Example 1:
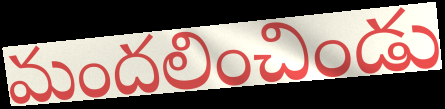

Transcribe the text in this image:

మందలించిండు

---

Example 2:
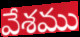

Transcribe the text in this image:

వేశము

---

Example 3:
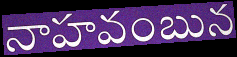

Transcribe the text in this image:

నాహవంబున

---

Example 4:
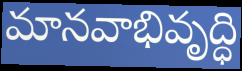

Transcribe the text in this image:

మానవాభివృద్ధి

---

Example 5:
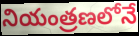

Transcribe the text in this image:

నియంత్రణలోనే